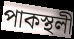
পাকস্থলী